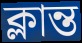
ক্লান্ত